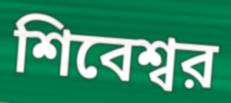
শিবেশ্বর